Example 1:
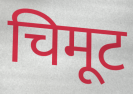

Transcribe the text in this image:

चिमूट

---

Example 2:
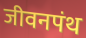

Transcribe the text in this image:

जीवनपंथ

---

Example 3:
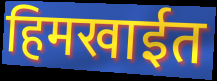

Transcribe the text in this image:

हिमखाईत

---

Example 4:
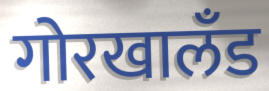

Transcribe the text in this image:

गोरखालॅंड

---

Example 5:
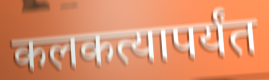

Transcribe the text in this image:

कलकत्यापर्यंत